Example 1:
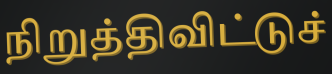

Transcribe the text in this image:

நிறுத்திவிட்டுச்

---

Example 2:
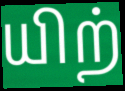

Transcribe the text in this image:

யிற்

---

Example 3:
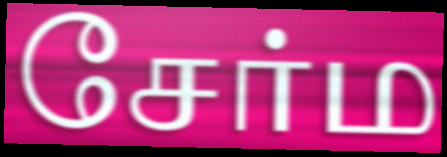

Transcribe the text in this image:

சேர்ம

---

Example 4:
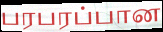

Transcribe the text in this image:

பரபரப்பான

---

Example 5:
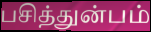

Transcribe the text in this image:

பசித்துன்பம்